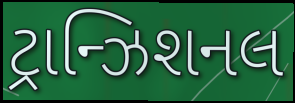
ટ્રાન્ઝિશનલ